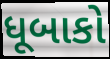
ધૂબાકો